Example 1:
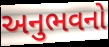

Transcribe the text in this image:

અનુભવનો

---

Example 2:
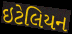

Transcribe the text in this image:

ઇટેલિયન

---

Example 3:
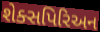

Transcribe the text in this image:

શેક્સપિરિઅન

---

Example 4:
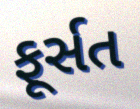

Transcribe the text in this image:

ફૂર્સત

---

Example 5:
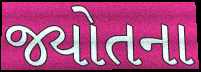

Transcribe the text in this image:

જ્યોતના